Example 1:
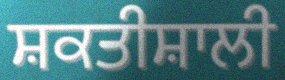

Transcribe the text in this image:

ਸ਼ਕਤੀਸ਼ਾਲੀ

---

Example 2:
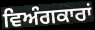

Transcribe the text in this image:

ਵਿਅੰਗਕਾਰਾਂ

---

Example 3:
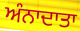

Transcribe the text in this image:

ਅੰਨਾਦਾਤਾ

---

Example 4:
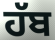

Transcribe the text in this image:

ਹੱਬ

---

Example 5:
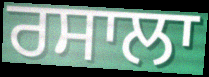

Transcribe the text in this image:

ਰਸਾਲਾ